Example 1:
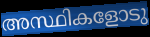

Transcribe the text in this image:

അസ്ഥികളോടു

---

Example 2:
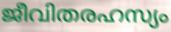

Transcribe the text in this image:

ജീവിതരഹസ്യം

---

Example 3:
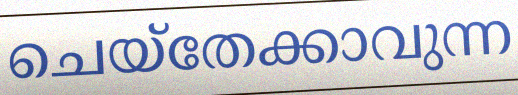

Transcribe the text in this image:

ചെയ്തേക്കാവുന്ന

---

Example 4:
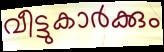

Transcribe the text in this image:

വീട്ടുകാർക്കും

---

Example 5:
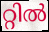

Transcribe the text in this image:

റ്റിൽ